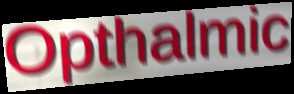
Opthalmic